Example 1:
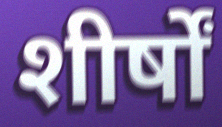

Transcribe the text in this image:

शीर्षों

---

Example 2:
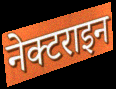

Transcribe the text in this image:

नेक्टराइन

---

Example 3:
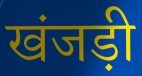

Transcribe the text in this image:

खंजड़ी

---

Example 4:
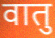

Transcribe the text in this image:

वातु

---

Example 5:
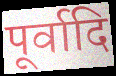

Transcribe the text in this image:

पूर्वादि